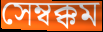
সেম্বক্কম